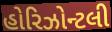
હોરિઝોન્ટલી